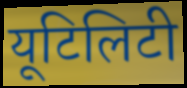
यूटिलिटी